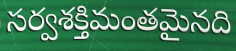
సర్వశక్తిమంతమైనది